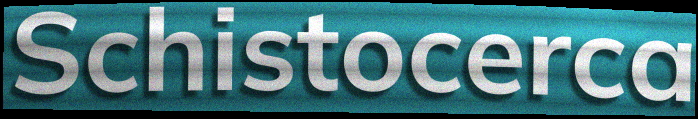
Schistocerca